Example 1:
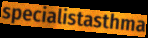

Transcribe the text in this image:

specialistasthma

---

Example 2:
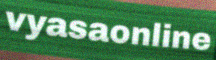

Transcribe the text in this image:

vyasaonline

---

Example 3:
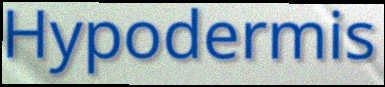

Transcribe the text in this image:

Hypodermis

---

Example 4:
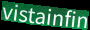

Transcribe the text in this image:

vistainfin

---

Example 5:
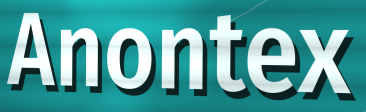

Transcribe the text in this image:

Anontex